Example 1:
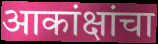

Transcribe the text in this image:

आकांक्षांचा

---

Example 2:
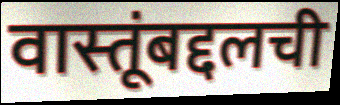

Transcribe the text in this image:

वास्तूंबद्दलची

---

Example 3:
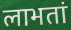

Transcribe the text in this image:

लाभतां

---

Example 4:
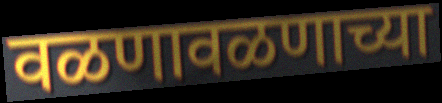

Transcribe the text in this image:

वळणावळणाच्या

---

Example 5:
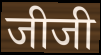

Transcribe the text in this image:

जीजी